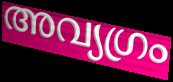
അവ്യഗ്രം